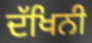
ਦੱਖਿਨੀ